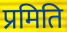
प्रमिति